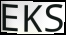
EKS